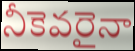
నీకెవరైనా